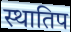
स्थातिप